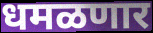
धमळणार